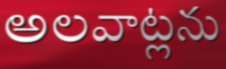
అలవాట్లను